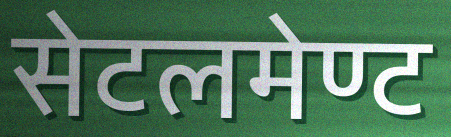
सेटलमेण्ट